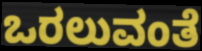
ಒರಲುವಂತೆ